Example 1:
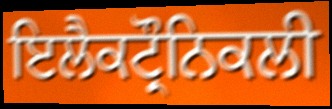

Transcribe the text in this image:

ਇਲੈਕਟ੍ਰੌਨਿਕਲੀ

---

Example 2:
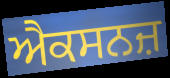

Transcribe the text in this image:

ਐਕਸਨਜ਼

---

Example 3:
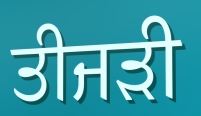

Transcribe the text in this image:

ਤੀਜੜੀ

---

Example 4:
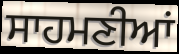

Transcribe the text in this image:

ਸਾਹਮਣੀਆਂ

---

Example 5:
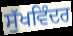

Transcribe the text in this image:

ਸੁੱਖਵਿੰਦਰ